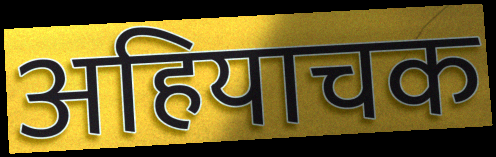
अहियाचक